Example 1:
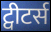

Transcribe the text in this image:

ट्वीटर्स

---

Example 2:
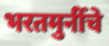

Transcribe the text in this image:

भरतमुनींचे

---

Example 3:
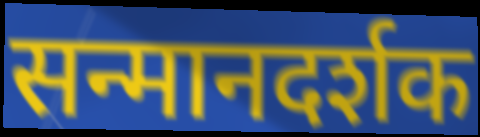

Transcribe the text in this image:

सन्मानदर्शक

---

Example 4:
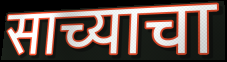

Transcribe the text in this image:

साच्याचा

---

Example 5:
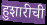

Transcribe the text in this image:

हुशारीची